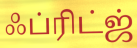
ஃப்ரிட்ஜ்